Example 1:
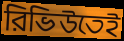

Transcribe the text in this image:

রিভিউতেই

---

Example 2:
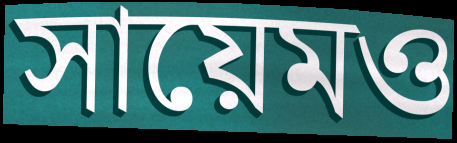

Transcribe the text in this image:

সায়েমও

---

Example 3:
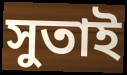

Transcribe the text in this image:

সুতাই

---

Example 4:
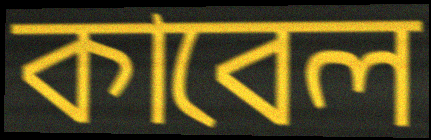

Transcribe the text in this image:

কাবেল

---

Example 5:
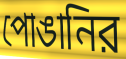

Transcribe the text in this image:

পোঙানির